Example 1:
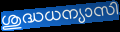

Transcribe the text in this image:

ശുദ്ധധന്യാസി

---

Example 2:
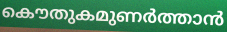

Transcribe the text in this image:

കൌതുകമുണർത്താൻ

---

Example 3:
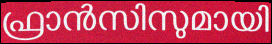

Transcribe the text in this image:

ഫ്രാൻസിസുമായി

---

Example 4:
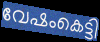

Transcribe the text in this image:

വേഷംകെട്ടി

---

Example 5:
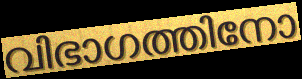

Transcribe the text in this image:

വിഭാഗത്തിനോ